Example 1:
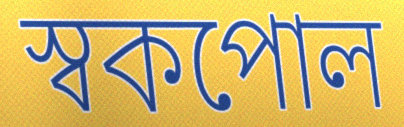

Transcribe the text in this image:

স্বকপোল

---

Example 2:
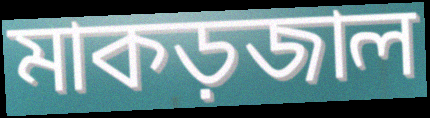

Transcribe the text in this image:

মাকড়জাল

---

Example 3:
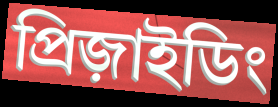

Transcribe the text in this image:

প্রিজ়াইডিং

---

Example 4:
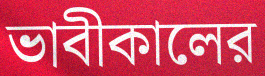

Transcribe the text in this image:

ভাবীকালের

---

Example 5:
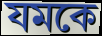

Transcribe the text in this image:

যমকে